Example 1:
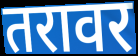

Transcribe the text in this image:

तरावर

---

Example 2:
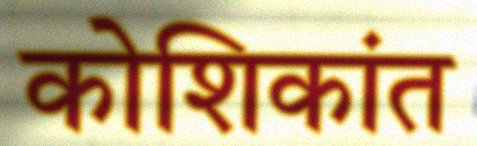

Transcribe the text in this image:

कोशिकांत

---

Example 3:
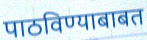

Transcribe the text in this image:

पाठविण्याबाबत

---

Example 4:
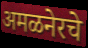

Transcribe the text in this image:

अमळनेरचे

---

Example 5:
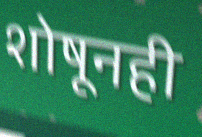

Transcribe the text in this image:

शोषूनही